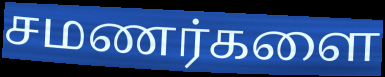
சமணர்களை